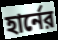
হার্নের